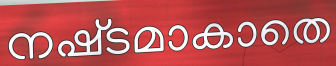
നഷ്‌ടമാകാതെ